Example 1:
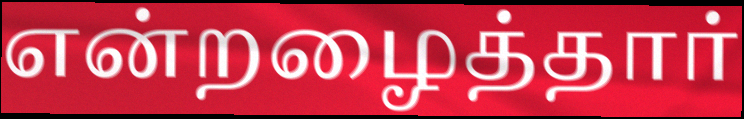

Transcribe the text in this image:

என்றழைத்தார்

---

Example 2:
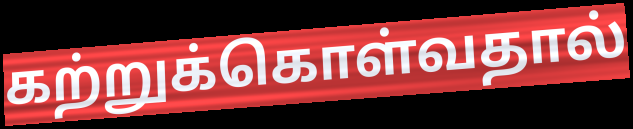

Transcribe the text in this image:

கற்றுக்கொள்வதால்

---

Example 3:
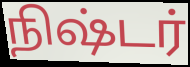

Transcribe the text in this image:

நிஷ்டர்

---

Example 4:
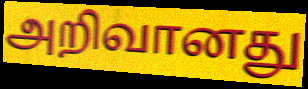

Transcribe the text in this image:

அறிவானது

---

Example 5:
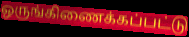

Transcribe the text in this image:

ஒருங்கிணைக்கப்பட்டு